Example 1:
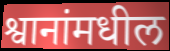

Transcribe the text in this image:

श्वानांमधील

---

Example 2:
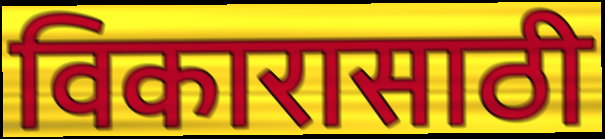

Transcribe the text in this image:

विकारासाठी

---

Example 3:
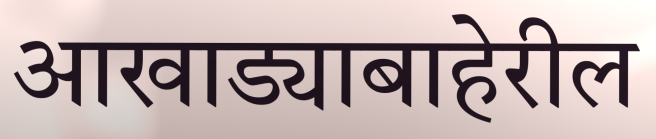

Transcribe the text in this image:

आखाड्याबाहेरील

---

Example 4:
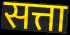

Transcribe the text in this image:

सत्ता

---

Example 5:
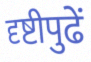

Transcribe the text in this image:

दृष्टीपुढें